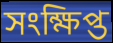
সংক্ষিপ্ত